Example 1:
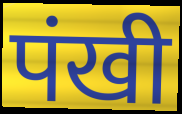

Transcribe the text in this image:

पंखी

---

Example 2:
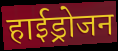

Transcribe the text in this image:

हाईड्रोजन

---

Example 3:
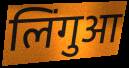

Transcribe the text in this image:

लिंगुआ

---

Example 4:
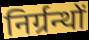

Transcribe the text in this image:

निर्ग्रन्थों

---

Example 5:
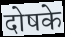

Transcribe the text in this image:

दोषके